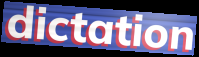
dictation